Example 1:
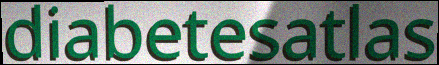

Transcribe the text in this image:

diabetesatlas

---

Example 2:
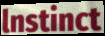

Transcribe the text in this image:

lnstinct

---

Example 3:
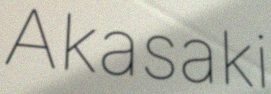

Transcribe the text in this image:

Akasaki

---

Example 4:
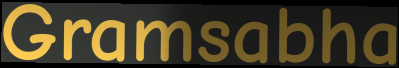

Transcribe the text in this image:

Gramsabha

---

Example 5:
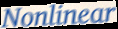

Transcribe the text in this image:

Nonlinear